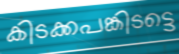
കിടക്കപങ്കിടട്ടെ